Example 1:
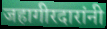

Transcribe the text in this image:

जहागीरदारांनी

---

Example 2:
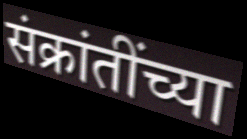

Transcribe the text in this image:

संक्रांतींच्या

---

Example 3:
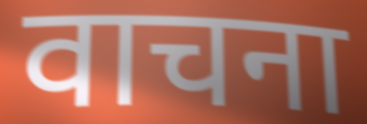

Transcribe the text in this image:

वाचना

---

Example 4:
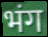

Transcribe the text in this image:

भंग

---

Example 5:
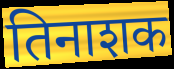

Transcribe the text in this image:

तिनाशक